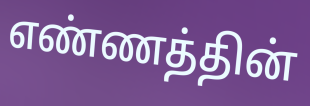
எண்ணத்தின்